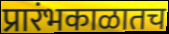
प्रारंभकाळातच